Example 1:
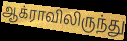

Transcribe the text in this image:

ஆக்ராவிலிருந்து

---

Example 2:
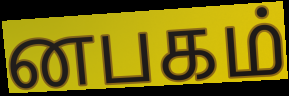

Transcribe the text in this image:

னபகம்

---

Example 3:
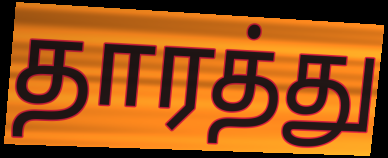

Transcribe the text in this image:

தாரத்து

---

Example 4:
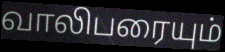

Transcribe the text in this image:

வாலிபரையும்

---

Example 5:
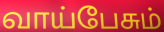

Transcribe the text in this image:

வாய்பேசும்